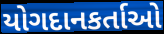
યોગદાનકર્તાઓ